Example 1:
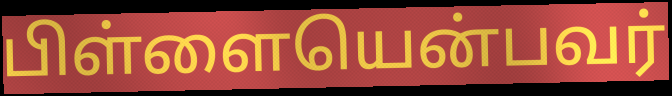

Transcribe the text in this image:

பிள்ளையென்பவர்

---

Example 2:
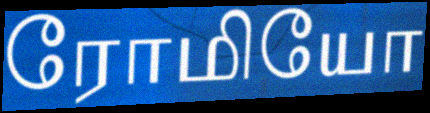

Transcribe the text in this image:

ரோமியோ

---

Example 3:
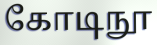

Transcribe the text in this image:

கோடிநூ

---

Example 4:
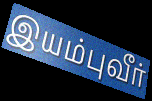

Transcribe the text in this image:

இயம்புவீர்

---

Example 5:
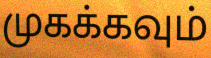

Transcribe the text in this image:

முகக்கவும்